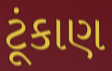
ટૂંકાણ